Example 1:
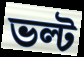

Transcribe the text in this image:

ভল্ট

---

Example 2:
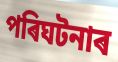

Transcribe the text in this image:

পৰিঘটনাৰ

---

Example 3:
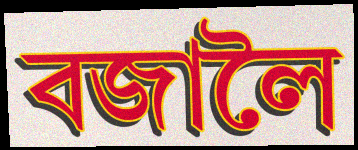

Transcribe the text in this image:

বজালৈ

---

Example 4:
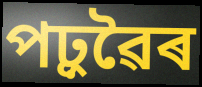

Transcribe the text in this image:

পঢ়ুৱৈৰ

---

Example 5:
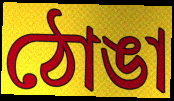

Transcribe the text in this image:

ঠোঙা